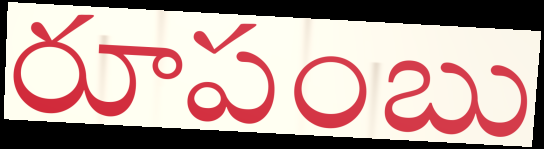
రూపంబు